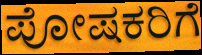
ಪೋಷಕರಿಗೆ